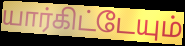
யார்கிட்டேயும்